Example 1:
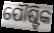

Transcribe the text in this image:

ପୌଷ୍ଟିକ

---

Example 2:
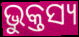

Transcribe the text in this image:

ଭୁକ୍ତସ୍ୟ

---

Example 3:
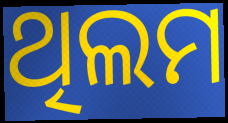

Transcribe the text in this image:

ଥିଲମ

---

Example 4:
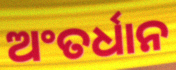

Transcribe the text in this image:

ଅଂତର୍ଧାନ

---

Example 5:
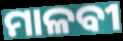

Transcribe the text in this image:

ମାଳବୀ